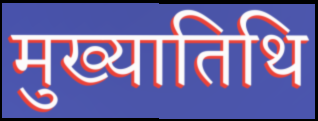
मुख्यातिथि